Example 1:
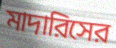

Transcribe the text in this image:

মাদারিসের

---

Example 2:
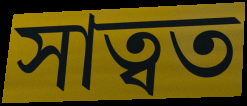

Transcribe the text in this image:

সাত্বত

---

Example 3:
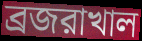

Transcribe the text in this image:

ব্রজরাখাল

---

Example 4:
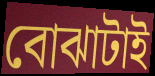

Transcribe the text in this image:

বোঝাটাই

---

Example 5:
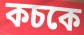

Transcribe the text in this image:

কচকে